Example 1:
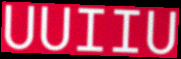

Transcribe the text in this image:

UUIIU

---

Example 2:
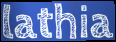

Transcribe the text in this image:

lathia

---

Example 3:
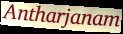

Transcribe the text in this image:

Antharjanam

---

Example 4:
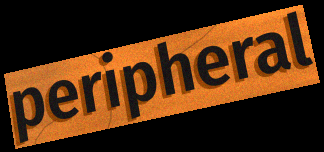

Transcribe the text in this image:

peripheral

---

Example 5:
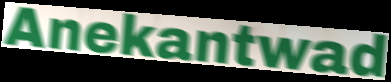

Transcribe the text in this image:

Anekantwad